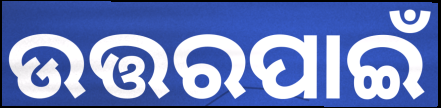
ଉତ୍ତରପାଇଁ